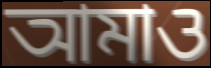
আমাও